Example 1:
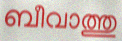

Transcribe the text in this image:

ബീവാത്തു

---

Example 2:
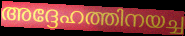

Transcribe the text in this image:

അദ്ദേഹത്തിനയച്ച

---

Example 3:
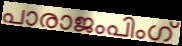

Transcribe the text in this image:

പാരാജംപിംഗ്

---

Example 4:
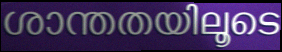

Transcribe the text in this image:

ശാന്തതയിലൂടെ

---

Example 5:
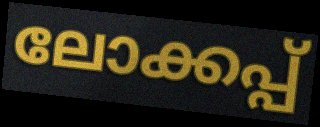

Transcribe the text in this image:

ലോക്കപ്പ്